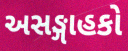
અસઙ્ગાહકો